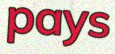
pays